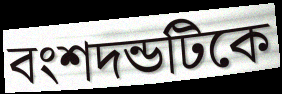
বংশদন্ডটিকে